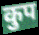
कुप